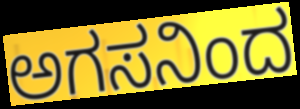
ಅಗಸನಿಂದ